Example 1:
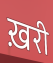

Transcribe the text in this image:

ख़री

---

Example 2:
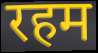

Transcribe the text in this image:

रहम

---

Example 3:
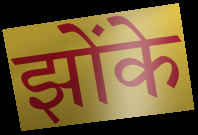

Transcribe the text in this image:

झोंके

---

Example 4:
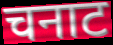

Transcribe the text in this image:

चनाट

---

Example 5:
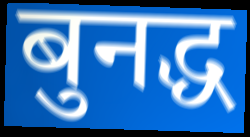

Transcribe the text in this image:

बुनद्ध